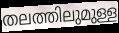
തലത്തിലുമുള്ള